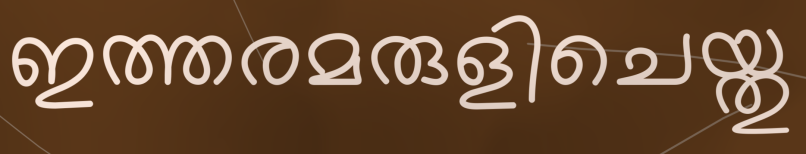
ഇത്തരമരുളിചെയ്തു